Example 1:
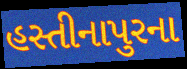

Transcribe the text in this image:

હસ્તીનાપુરના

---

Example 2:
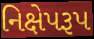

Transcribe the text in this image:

નિક્ષેપરૂપ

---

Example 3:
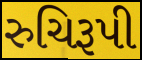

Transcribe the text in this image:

રુચિરૂપી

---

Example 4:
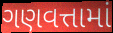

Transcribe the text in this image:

ગણવત્તામાં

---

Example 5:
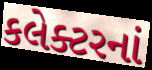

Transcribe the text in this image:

કલેક્ટરનાં